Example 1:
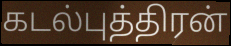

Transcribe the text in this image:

கடல்புத்திரன்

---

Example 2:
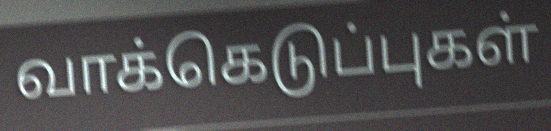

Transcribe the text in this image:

வாக்கெடுப்புகள்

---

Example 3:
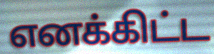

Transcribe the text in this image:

எனக்கிட்ட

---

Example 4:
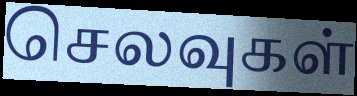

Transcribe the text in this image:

செலவுகள்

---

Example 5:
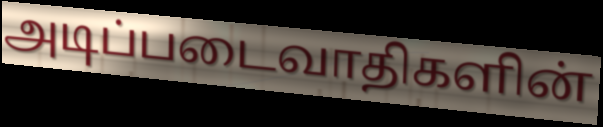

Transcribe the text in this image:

அடிப்படைவாதிகளின்